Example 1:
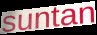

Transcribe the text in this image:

suntan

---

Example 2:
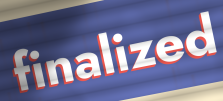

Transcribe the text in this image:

finalized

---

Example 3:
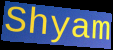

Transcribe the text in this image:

Shyam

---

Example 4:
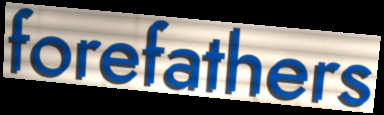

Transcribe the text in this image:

forefathers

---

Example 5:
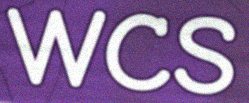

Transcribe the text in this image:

WCS